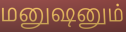
மனுஷனும்